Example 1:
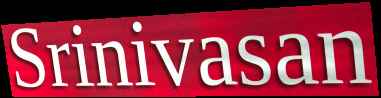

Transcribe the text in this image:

Srinivasan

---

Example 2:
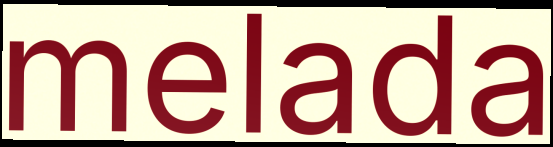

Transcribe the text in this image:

melada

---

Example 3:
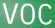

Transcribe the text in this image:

VOC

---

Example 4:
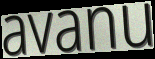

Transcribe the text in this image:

avanu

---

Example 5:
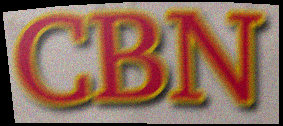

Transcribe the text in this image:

CBN